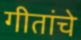
गीतांचे